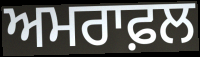
ਅਮਰਾਫ਼ਲ